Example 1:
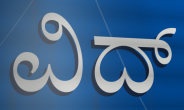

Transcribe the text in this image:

ವಿದ್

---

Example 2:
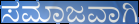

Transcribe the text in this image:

ಸಮಾಜವಾಗಿ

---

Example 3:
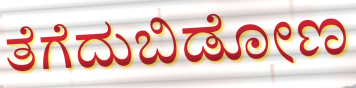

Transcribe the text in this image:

ತೆಗೆದುಬಿಡೋಣ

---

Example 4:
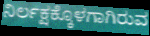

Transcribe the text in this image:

ನಿರ್ಲಕ್ಷಕ್ಕೊಳಗಾಗಿರುವ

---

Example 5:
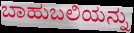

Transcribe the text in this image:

ಬಾಹುಬಲಿಯನ್ನು